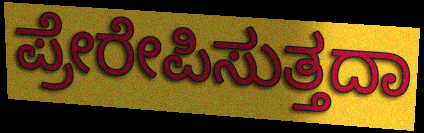
ಪ್ರೇರೇಪಿಸುತ್ತದಾ